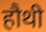
हौथी